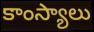
కాంస్యాలు